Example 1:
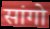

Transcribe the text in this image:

सांगो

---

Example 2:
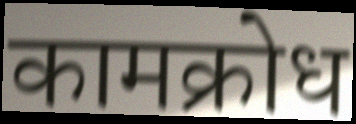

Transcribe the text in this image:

कामक्रोध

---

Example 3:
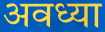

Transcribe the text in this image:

अवध्या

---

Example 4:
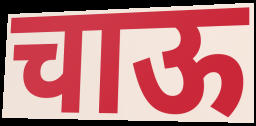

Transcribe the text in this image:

चाऊ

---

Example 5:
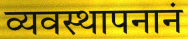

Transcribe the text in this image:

व्यवस्थापनानं